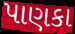
પાણકા